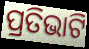
ପ୍ରତିଭାଟି